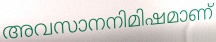
അവസാനനിമിഷമാണ്